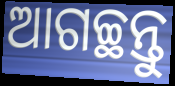
ଆଗଚ୍ଛନ୍ତୁ